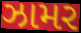
ઝામર